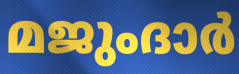
മജുംദാർ